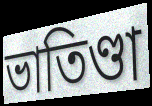
ভাতিণ্ডা